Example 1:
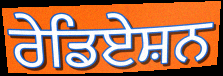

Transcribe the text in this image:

ਰੇਡਿਏਸ਼ਨ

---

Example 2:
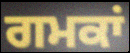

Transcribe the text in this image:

ਗਮਕਾਂ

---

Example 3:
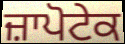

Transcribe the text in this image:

ਜ਼ਾਪੋਟੇਕ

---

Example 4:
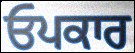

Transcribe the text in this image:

ਓਪਕਾਰ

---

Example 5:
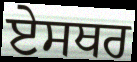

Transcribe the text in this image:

ਏਸਥਰ